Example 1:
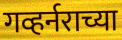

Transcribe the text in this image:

गव्हर्नराच्या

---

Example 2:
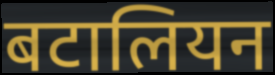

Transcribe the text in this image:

बटालियन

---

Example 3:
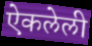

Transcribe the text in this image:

ऐकलेली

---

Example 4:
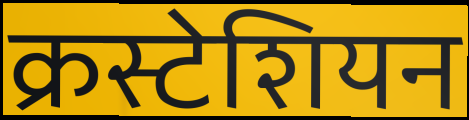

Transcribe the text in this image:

क्रस्टेशियन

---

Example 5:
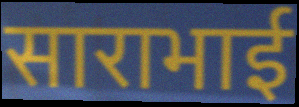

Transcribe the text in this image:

साराभाई